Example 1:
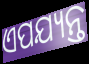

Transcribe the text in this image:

ଏପଯ୍ୟନ୍ତ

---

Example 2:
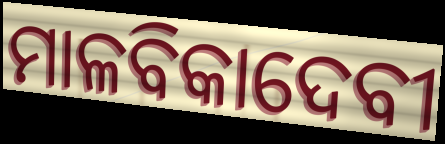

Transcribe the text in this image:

ମାଳବିକାଦେବୀ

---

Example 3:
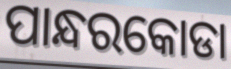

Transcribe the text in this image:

ପାନ୍ଧରକୋଡା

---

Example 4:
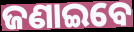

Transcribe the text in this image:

ଜଣାଇବେ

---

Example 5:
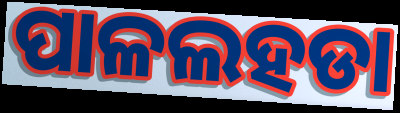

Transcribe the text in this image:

ପାଳଲହଡା